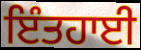
ਇੰਤਹਾਈ